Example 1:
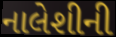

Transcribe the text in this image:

નાલેશીની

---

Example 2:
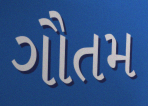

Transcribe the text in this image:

ગૌતમ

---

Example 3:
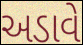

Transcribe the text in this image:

અડાવે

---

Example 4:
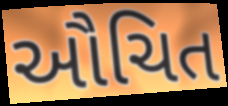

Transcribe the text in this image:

ઔચિત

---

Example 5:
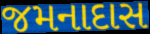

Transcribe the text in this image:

જમનાદાસ